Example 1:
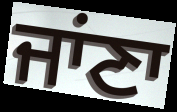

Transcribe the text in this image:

ਜਾਂਣਾ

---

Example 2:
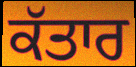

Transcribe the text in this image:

ਕੱਤਾਰ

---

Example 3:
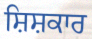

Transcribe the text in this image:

ਸ਼ਿਸ਼ਕਾਰ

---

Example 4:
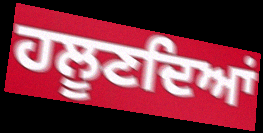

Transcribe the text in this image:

ਹਲੂਣਦਿਆਂ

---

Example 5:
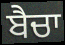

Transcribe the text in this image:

ਬੈਚਾ